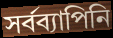
সর্বব্যাপিনি